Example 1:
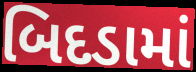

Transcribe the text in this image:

બિદડામાં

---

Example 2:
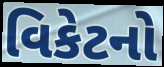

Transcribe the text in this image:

વિકેટનો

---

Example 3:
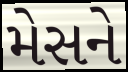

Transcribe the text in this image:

મેસને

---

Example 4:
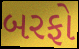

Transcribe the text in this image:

બરફો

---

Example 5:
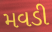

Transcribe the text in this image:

મવડી